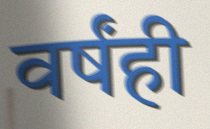
वर्षंही